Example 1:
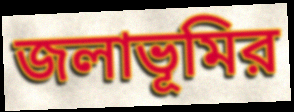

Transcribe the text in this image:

জলাভূমির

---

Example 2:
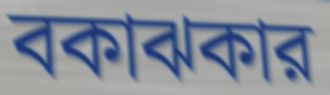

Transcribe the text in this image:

বকাঝকার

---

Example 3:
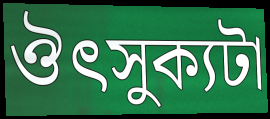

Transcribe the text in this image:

ঔৎসুক্যটা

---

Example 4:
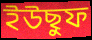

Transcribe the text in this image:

ইউছুফ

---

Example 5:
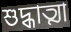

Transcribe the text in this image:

শুদ্ধাত্মা